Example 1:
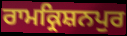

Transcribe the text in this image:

ਰਾਮਕ੍ਰਿਸ਼ਨਪੁਰ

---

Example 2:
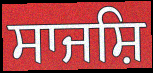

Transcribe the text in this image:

ਸਾਜਸ਼ਿ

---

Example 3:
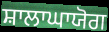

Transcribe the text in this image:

ਸ਼ਾਲਾਘਾਯੋਗ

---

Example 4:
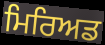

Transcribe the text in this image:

ਮਿਰਿਅਡ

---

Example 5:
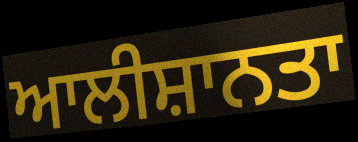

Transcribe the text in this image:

ਆਲੀਸ਼ਾਨਤਾ